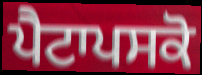
ਪੈਟਾਪਸਕੋ